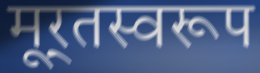
मूर्तस्वरूप